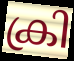
ക്രി